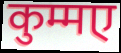
कुम्मए